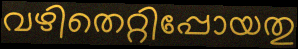
വഴിതെറ്റിപ്പോയതു